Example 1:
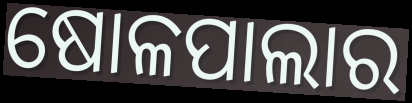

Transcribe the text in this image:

ଷୋଳପାଲାର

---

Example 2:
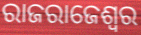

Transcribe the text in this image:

ରାଜରାଜେଶ୍ଵର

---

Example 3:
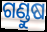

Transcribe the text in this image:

ଗଣ୍ଡୁଷ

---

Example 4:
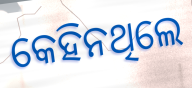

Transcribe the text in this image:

କେହିନଥିଲେ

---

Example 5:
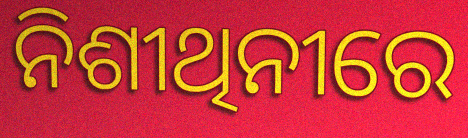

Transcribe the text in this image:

ନିଶୀଥିନୀରେ